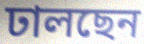
ঢালছেন